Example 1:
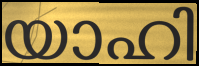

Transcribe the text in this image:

യാഹി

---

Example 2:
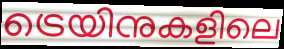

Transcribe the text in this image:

ട്രെയിനുകളിലെ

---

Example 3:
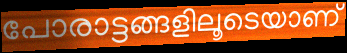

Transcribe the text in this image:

പോരാട്ടങ്ങളിലൂടെയാണ്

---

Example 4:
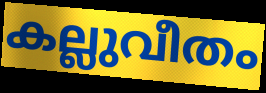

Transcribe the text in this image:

കല്ലുവീതം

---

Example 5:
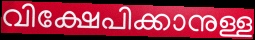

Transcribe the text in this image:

വിക്ഷേപിക്കാനുള്ള